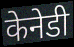
केनेडी